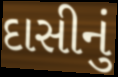
દાસીનું